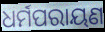
ଧର୍ମପରାୟଣ